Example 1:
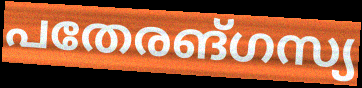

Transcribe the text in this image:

പതേരങ്ഗസ്യ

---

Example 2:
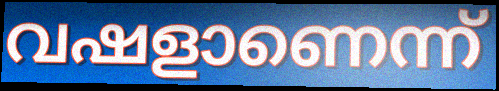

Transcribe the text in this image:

വഷളാണെന്ന്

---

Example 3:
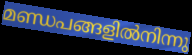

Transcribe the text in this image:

മണ്ഡപങ്ങളിൽനിന്നു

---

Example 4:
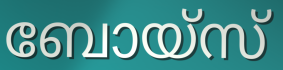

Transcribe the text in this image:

ബോയ്സ്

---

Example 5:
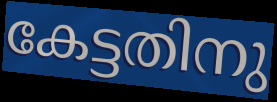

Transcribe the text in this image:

കേട്ടതിനു